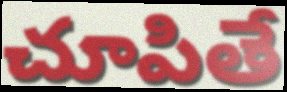
చూపితే